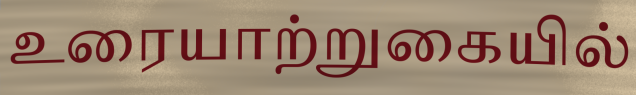
உரையாற்றுகையில்